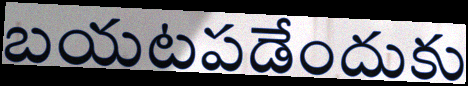
బయటపడేందుకు